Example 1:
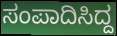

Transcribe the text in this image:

ಸಂಪಾದಿಸಿದ್ದ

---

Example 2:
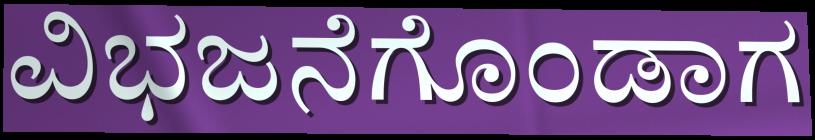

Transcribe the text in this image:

ವಿಭಜನೆಗೊಂಡಾಗ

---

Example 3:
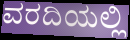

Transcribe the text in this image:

ವರದಿಯಲ್ಲಿ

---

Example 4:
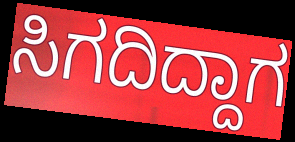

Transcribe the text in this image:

ಸಿಗದಿದ್ದಾಗ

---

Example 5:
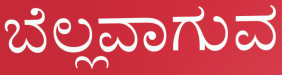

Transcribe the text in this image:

ಬೆಲ್ಲವಾಗುವ